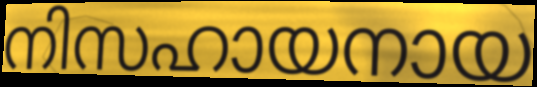
നിസഹായനായ